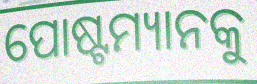
ପୋଷ୍ଟମ୍ୟାନକୁ